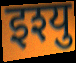
इश्यु